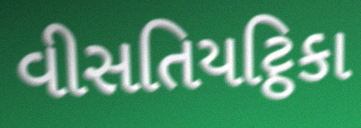
વીસતિયટ્ઠિકા